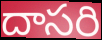
దాసరి